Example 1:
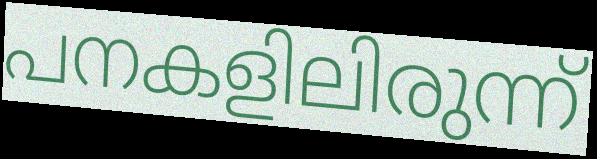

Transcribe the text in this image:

പനകളിലിരുന്ന്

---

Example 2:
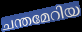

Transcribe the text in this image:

ചന്തമേറിയ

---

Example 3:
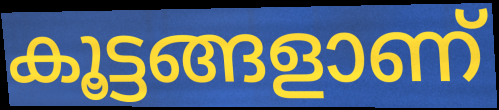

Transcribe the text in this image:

കൂട്ടങ്ങളാണ്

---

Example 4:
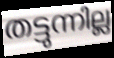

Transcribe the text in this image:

തട്ടുന്നില്ല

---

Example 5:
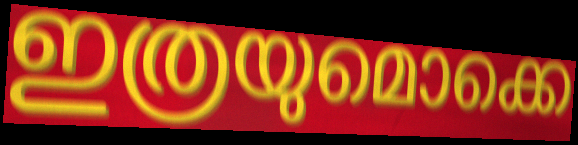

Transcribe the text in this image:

ഇത്രയുമൊക്കെ